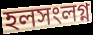
হলসংলগ্ন